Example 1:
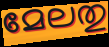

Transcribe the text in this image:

മേലതു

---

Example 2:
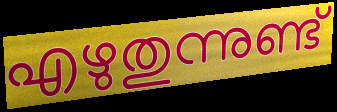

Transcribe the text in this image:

എഴുതുന്നുണ്ട്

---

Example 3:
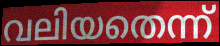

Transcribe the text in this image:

വലിയതെന്ന്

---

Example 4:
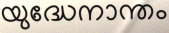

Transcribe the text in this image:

യുദ്ധേനാന്തം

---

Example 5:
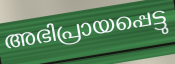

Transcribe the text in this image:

അഭിപ്രായപ്പെട്ടു